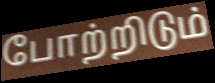
போற்றிடும்